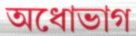
অধোভাগ